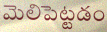
మెలిపెట్టడం